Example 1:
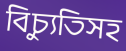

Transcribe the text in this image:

বিচ্যুতিসহ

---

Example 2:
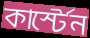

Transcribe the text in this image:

কার্স্টেন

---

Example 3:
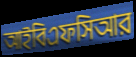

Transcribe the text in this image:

আইবিএফসিআর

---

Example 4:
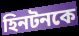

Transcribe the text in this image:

হিনটনকে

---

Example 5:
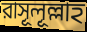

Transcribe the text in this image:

রাসূলূল্লাহ